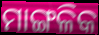
ମାଙ୍ଗଳିକ